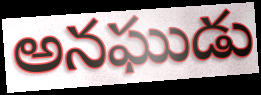
అనఘుడు